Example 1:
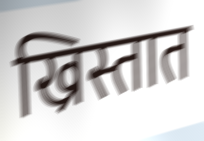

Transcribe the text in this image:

ख्रिस्तात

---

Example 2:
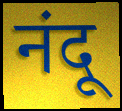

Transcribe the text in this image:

नंदू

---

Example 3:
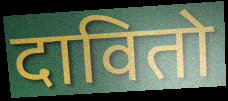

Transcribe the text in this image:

दावितो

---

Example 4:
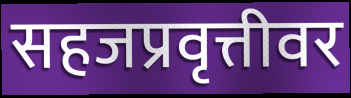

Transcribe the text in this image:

सहजप्रवृत्तीवर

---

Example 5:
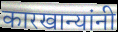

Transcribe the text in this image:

कारखान्यांनी